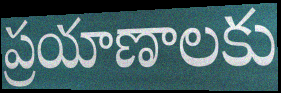
ప్రయాణాలకు